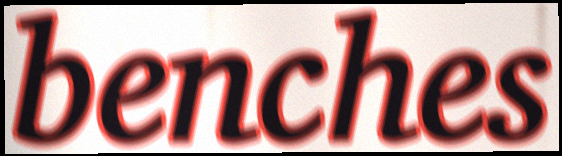
benches